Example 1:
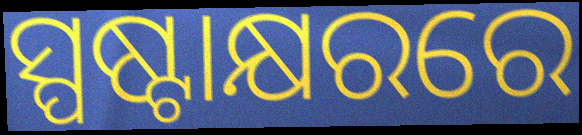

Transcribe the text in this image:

ସ୍ପଷ୍ଟାକ୍ଷରରେ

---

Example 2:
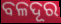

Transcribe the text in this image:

ବଳଦୂର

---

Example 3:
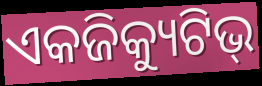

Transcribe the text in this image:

ଏକଜିକ୍ୟୁଟିଭ୍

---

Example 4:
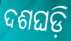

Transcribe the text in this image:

ଦଶଘଡ଼ି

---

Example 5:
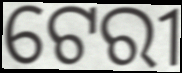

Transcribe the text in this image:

ଟେରୀ